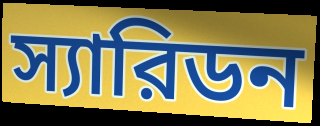
স্যারিডন